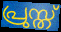
പ്രുസ്ത്